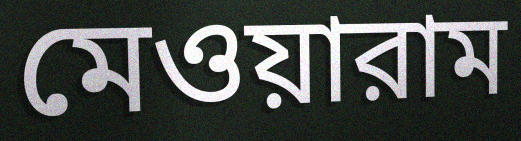
মেওয়ারাম